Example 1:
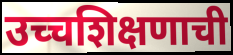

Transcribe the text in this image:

उच्चशिक्षणाची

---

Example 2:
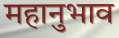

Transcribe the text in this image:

महानुभाव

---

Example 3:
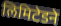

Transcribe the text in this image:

लिमिटेडने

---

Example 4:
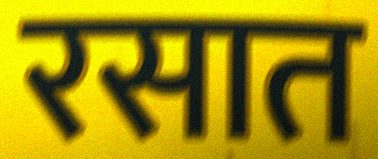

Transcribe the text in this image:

रसात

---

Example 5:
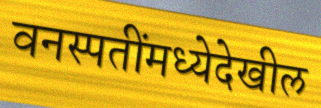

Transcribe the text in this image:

वनस्पतींमध्येदेखील